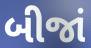
બીજાં